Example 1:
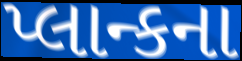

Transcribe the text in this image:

પ્લાન્કના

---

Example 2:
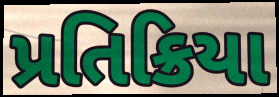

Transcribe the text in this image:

પ્રતિક્રિયા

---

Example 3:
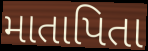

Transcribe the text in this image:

માતાપિતા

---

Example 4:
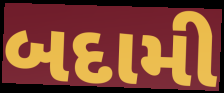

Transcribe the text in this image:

બદામી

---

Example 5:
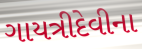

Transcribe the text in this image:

ગાયત્રીદેવીના